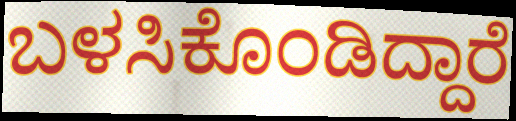
ಬಳಸಿಕೊಂಡಿದ್ದಾರೆ